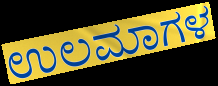
ಉಲಮಾಗಳ